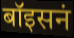
बॉइसनं